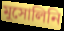
মুসোলিনি